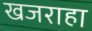
खजराहा